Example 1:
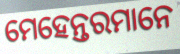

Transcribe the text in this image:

ମେହେନ୍ତରମାନେ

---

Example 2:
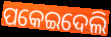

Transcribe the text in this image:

ପକେଇଦେଲି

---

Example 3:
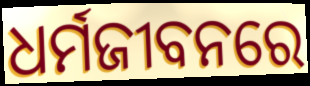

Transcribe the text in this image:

ଧର୍ମଜୀବନରେ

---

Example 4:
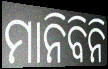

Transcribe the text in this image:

ମାନିବିନି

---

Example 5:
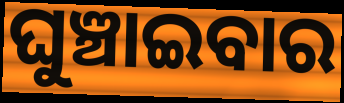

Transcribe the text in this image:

ଘୁଞ୍ଚାଇବାର